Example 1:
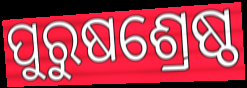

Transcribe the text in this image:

ପୁରୁଷଶ୍ରେଷ୍ଠ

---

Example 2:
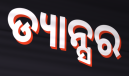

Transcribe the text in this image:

ଡ୍ୟାନ୍ସର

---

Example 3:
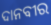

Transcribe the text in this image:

ଦାନବୀର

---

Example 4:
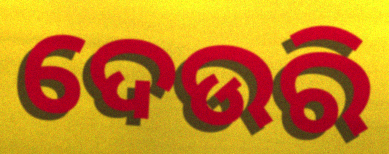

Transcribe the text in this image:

ଦେଉରି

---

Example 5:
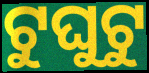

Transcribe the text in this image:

ଟୁଘୁଟୁ